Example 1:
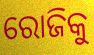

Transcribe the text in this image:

ରୋଜିକୁ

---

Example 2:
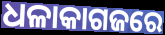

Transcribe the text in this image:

ଧଳାକାଗଜରେ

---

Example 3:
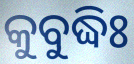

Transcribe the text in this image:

କୁବୁଦ୍ଧିଃ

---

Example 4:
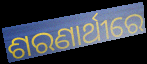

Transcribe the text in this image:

ଶରଣାର୍ଥୀରେ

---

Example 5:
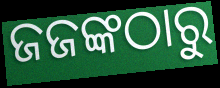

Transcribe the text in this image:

ଜଜଙ୍କଠାରୁ